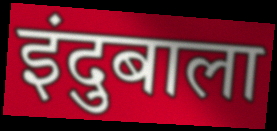
इंदुबाला